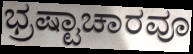
ಭ್ರಷ್ಟಾಚಾರವೂ